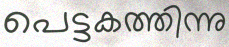
പെട്ടകത്തിന്നു